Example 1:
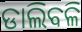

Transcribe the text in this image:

ଡାଲିବଳି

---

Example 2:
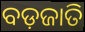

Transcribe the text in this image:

ବଡ଼ଜାତି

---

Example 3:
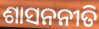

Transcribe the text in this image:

ଶାସନନୀତି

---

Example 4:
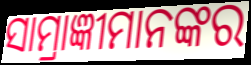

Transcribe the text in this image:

ସାମ୍ରାଜ୍ଞୀମାନଙ୍କର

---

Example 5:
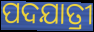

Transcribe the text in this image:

ପଦଯାତ୍ରୀ